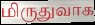
மிருதுவாக